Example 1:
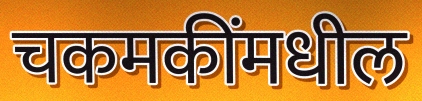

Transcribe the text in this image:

चकमकींमधील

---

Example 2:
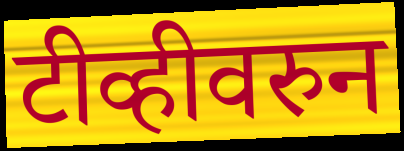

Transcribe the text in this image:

टीव्हीवरुन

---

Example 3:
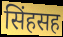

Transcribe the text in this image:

सिंहसह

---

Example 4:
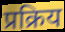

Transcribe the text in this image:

प्रक्रिय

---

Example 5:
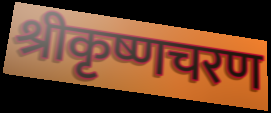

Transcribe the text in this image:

श्रीकृष्णचरण